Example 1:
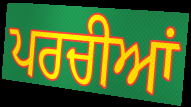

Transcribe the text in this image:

ਪਰਚੀਆਂ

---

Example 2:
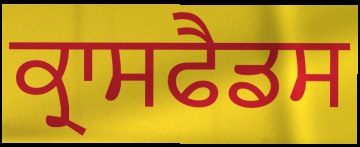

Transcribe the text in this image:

ਕ੍ਰਾਸਫੈਡਸ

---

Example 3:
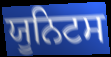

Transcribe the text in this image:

ਯੂਨਿਟਸ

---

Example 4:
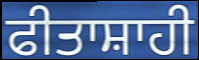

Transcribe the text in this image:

ਫੀਤਾਸ਼ਾਹੀ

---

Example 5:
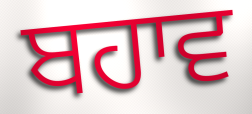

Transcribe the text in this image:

ਬਹਾਵ